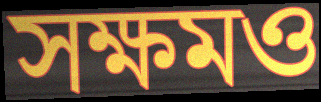
সক্ষমও